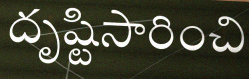
దృష్టిసారించి